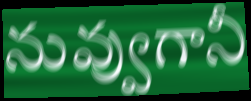
నువ్వుగానీ